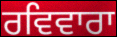
ਰਵਿਵਾਰਾ